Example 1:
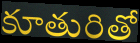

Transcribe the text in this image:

కూతురితో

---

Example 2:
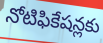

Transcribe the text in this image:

నోటిఫికేషన్లకు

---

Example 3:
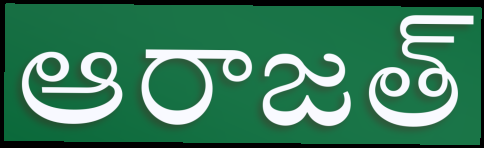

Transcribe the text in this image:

ఆరాజత్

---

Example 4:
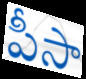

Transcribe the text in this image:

పీసా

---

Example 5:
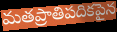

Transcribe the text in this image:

మతప్రాతిపదికపైన